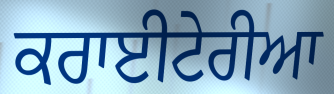
ਕਰਾਈਟੇਰੀਆ